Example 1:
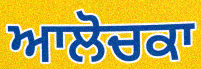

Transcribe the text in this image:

ਆਲੋਚਕਾ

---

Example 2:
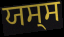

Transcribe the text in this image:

ਯਸ੍ਸ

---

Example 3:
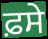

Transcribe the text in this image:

ਫ਼ਸੇ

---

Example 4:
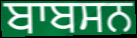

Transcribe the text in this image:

ਬਾਬਸਨ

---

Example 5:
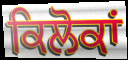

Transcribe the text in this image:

ਕਿਲੋਕਾਂ